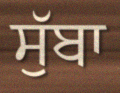
ਸੁੱਬਾ